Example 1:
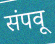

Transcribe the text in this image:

संपवू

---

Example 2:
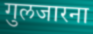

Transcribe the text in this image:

गुलजारना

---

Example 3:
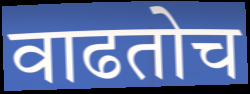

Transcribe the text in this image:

वाढतोच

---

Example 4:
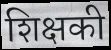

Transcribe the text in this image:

शिक्षकी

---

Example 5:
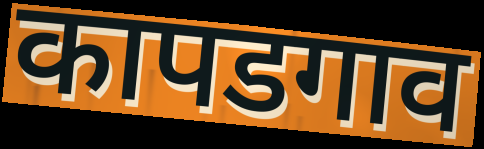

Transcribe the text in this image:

कापडगाव